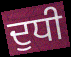
ਦੁਧੀ